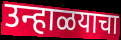
उन्हाळयाचा